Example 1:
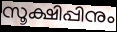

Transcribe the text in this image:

സൂക്ഷിപ്പിനും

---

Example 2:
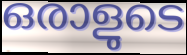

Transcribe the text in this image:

ഒരാളുടെ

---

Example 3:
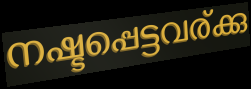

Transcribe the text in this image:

നഷ്ടപ്പെട്ടവര്ക്കു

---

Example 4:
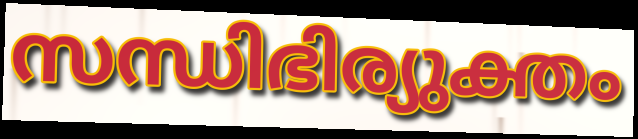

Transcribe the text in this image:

സന്ധിഭിര്യുക്തം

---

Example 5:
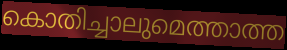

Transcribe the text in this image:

കൊതിച്ചാലുമെത്താത്ത